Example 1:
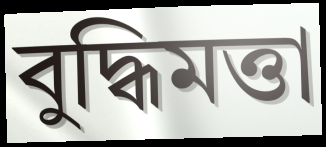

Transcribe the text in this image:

বুদ্ধিমত্তা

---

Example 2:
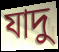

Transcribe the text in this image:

যাদু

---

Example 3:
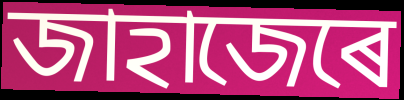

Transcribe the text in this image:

জাহাজেৰে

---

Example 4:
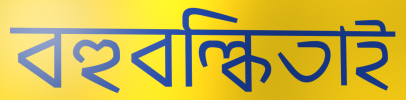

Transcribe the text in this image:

বহুবল্কিতাই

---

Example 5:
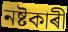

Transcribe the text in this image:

নষ্টকাৰী